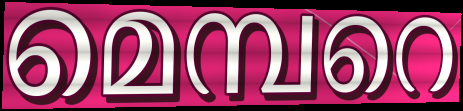
മെമ്പറെ